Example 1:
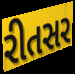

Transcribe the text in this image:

રીતસર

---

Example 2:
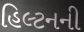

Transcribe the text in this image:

હિલ્ટનની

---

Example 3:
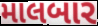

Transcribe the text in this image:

માલબાર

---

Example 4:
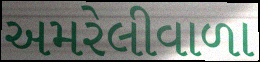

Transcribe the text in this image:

અમરેલીવાળા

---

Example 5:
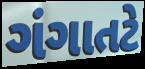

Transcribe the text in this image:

ગંગાતટે